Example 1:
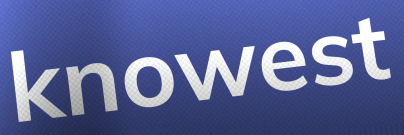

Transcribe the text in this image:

knowest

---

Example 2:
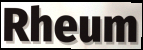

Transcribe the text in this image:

Rheum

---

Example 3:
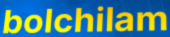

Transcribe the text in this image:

bolchilam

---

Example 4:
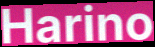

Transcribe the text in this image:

Harino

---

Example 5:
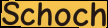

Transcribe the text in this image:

Schoch